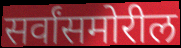
सर्वांसमोरील